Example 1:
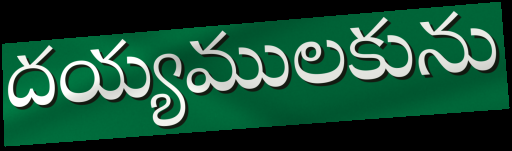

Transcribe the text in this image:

దయ్యములకును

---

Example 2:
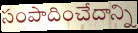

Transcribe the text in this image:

సంపాదించేదాన్ని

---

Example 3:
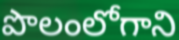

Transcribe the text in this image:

పొలంలోగాని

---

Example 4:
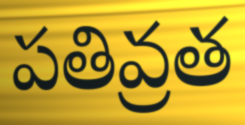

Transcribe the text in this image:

పతివ్రత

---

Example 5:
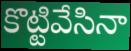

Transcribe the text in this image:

కొట్టివేసినా